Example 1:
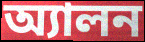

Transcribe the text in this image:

অ্যালন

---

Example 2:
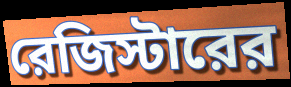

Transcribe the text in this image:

রেজিস্টারের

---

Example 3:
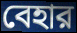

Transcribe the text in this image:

বেহার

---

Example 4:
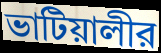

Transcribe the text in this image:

ভাটিয়ালীর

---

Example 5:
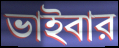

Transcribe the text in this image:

ভাইবার